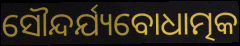
ସୌନ୍ଦର୍ଯ୍ୟବୋଧାତ୍ମକ